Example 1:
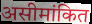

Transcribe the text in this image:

असीमांकित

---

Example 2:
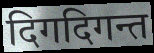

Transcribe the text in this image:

दिगदिगन्त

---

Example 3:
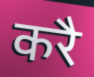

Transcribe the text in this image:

करै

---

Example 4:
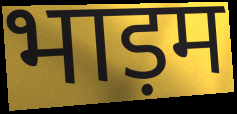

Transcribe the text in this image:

भाड़म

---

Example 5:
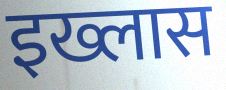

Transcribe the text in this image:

इख्लास